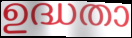
ഉദ്ധതാ